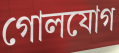
গোলযোগ